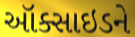
ઑક્સાઇડને